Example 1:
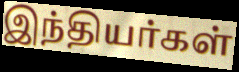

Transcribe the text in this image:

இந்தியர்கள்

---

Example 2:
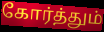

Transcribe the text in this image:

கோர்த்தும்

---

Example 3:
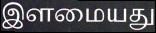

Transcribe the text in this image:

இளமையது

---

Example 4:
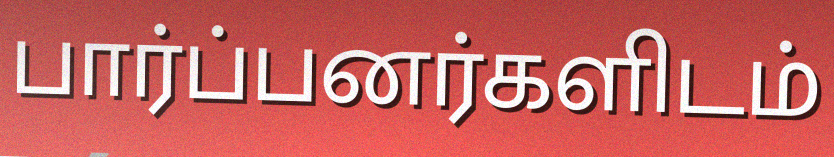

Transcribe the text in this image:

பார்ப்பனர்களிடம்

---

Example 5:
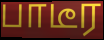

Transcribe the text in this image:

பாடீர